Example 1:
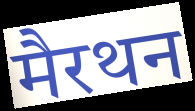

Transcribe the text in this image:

मैरथन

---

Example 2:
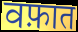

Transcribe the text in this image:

वफ़ात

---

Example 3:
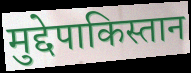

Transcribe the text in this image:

मुद्देपाकिस्तान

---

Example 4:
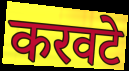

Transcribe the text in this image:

करवटे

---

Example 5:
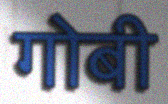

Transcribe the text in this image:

गोबी